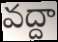
వద్దా